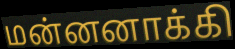
மன்னனாக்கி